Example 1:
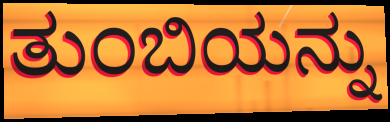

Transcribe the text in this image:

ತುಂಬಿಯನ್ನು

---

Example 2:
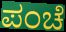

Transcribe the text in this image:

ಪಂಚೆ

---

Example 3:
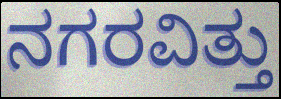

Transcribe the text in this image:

ನಗರವಿತ್ತು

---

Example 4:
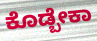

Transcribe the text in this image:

ಕೊಡ್ಬೇಕಾ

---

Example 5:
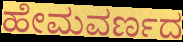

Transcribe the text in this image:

ಹೇಮವರ್ಣದ